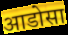
आडोसा